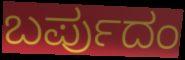
ಬರ್ಪುದಂ